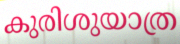
കുരിശുയാത്ര